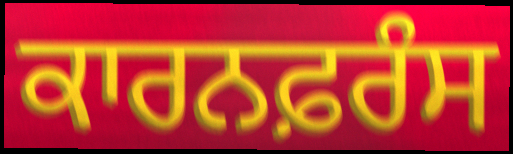
ਕਾਰਨਫ਼ਰੰਸ